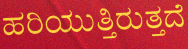
ಹರಿಯುತ್ತಿರುತ್ತದೆ